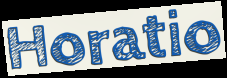
Horatio